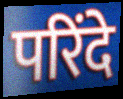
परिंदे